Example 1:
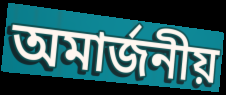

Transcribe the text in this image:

অমার্জনীয়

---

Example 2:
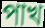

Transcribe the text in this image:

পাখ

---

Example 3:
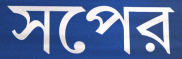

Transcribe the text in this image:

সপের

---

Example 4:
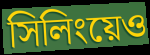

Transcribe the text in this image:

সিলিংয়েও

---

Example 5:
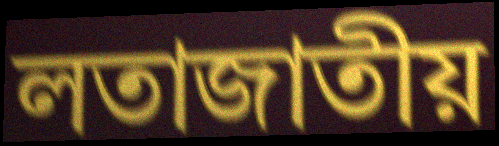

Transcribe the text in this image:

লতাজাতীয়